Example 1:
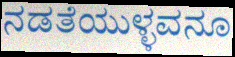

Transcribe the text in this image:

ನಡತೆಯುಳ್ಳವನೂ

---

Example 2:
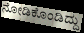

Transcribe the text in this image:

ನೋಡಿಕೊಂಡಿದ್ದು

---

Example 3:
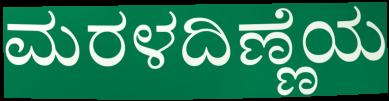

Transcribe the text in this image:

ಮರಳದಿಣ್ಣೆಯ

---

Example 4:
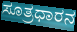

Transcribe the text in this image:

ಸೂತ್ರಧಾರನ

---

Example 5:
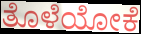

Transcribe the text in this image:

ತೊಳೆಯೋಕೆ